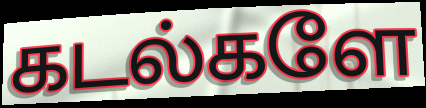
கடல்களே